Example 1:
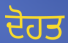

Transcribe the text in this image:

ਦੋਹਤ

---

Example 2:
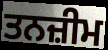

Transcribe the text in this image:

ਤਨਜ਼ੀਮ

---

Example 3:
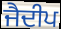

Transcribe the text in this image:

ਜੈਦੀਪ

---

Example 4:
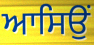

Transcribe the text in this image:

ਆਸਿਉਂ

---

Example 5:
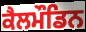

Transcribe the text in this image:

ਕੈਲਮੌਡਿਨ